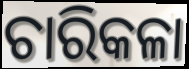
ଚାରିକଳା